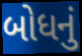
બોધનું